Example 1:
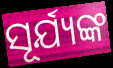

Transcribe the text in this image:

ସୂର୍ଯ୍ୟଙ୍କ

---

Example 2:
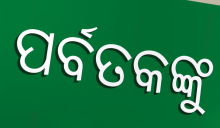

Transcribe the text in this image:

ପର୍ବତକଙ୍କୁ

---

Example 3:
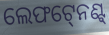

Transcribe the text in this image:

ଲେଫଟ୍‍ନେଣ୍ଟ୍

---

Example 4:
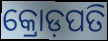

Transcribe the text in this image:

କ୍ରୋଡ଼ପତି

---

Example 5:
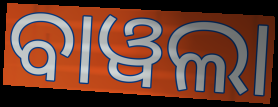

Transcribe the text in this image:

ବାୱଲା